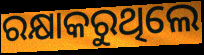
ରକ୍ଷାକରୁଥିଲେ